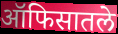
ऑफिसातले